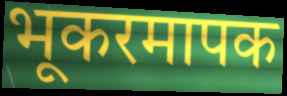
भूकरमापक